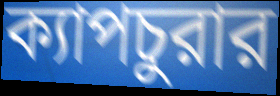
ক্যাপচুরার